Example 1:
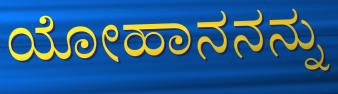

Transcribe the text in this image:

ಯೋಹಾನನನ್ನು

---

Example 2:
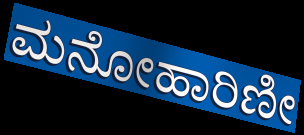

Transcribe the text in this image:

ಮನೋಹಾರಿಣೀ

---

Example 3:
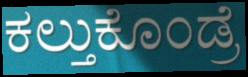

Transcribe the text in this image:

ಕಲ್ತುಕೊಂಡ್ರೆ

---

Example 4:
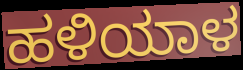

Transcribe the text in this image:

ಹಳಿಯಾಳ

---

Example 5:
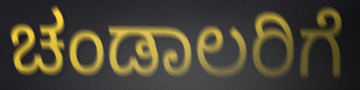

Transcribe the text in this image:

ಚಂಡಾಲರಿಗೆ